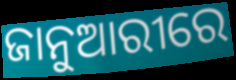
ଜାନୁଆରୀରେ